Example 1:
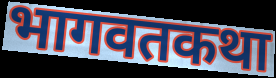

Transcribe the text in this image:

भागवतकथा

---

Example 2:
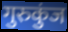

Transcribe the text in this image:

गुरुकुंज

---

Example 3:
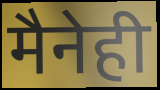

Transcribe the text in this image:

मैनेही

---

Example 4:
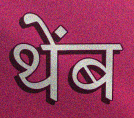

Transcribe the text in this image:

थेंब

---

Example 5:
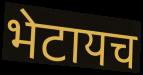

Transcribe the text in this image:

भेटायच